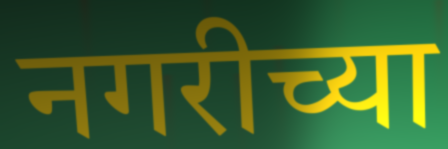
नगरीच्या